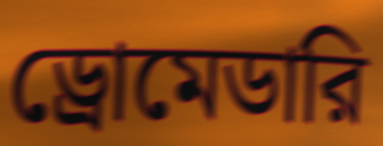
ড্রোমেডারি